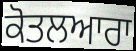
ਕੋਤਲਆਰਾ